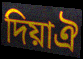
দিয়াঐ